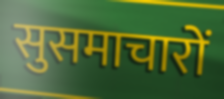
सुसमाचारों